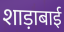
शाड़ाबाई